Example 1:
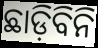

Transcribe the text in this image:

ଛାଡ଼ିବିନି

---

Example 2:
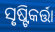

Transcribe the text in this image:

ସୃଷ୍ଟିକର୍ତ୍ତା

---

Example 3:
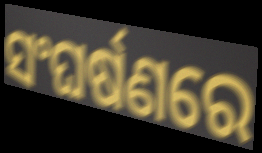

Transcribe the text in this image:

ସଂଘର୍ଷଣରେ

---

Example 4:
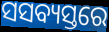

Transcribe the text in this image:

ସସବ୍ୟସ୍ତରେ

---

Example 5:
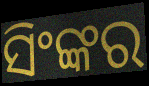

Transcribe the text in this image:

ସିଂଙ୍କର